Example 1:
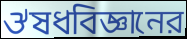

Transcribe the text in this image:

ঔষধবিজ্ঞানের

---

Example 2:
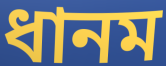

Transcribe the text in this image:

ধানম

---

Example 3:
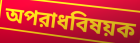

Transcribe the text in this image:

অপরাধবিষয়ক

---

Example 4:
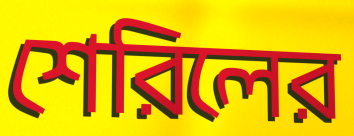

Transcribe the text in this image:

শেরিলের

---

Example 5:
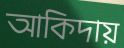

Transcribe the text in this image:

আকিদায়